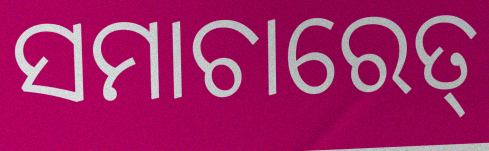
ସମାଚାରେତ୍